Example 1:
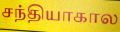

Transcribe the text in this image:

சந்தியாகால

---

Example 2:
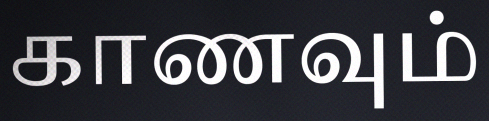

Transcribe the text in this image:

காணவும்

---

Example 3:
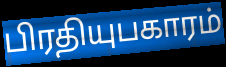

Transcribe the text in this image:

பிரதியுபகாரம்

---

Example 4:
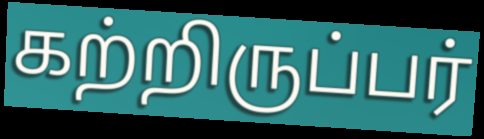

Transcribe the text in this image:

கற்றிருப்பர்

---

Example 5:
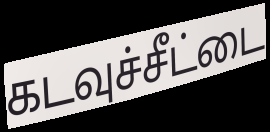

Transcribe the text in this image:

கடவுச்சீட்டை